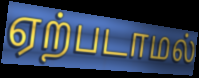
ஏற்படாமல்